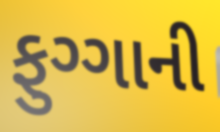
ફુગ્ગાની